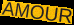
AMOUR